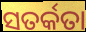
ସତର୍କତା